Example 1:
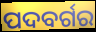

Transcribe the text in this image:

ପଦବର୍ଗର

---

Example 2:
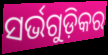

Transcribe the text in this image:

ସର୍ଭଗୁଡ଼ିକର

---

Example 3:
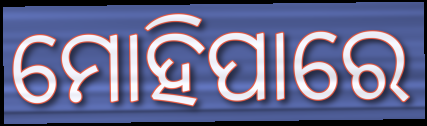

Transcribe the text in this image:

ମୋହିପାରେ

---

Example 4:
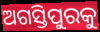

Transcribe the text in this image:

ଅଗସ୍ତିପୁରକୁ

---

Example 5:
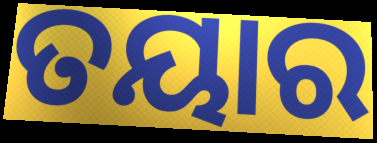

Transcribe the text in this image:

ତୟାର